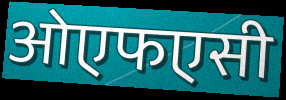
ओएफएसी